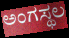
ಅಂಗಸ್ಥಲ